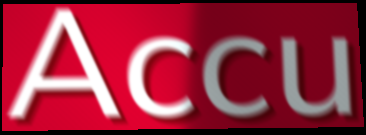
Accu